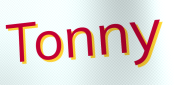
Tonny